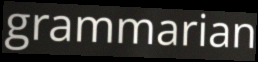
grammarian